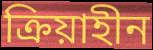
ক্রিয়াহীন